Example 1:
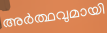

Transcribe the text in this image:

അർത്ഥവുമായി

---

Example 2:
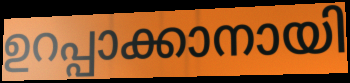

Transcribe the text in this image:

ഉറപ്പാക്കാനായി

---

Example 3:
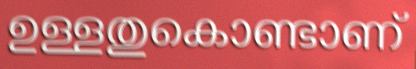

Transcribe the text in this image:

ഉള്ളതുകൊണ്ടാണ്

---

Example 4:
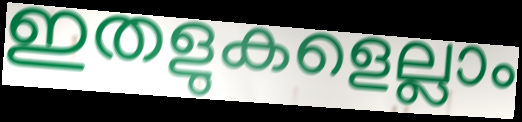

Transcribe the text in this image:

ഇതളുകളെല്ലാം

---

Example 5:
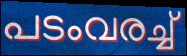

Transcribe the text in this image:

പടംവരച്ച്